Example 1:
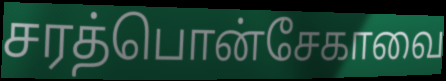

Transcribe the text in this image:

சரத்பொன்சேகாவை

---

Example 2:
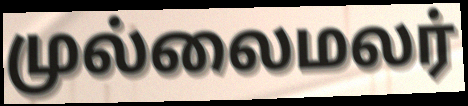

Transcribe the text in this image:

முல்லைமலர்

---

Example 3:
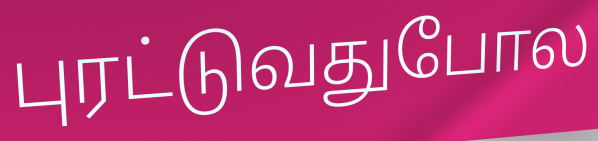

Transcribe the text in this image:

புரட்டுவதுபோல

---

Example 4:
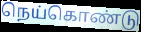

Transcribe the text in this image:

நெய்கொண்டு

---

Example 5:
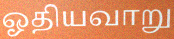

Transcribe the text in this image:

ஓதியவாறு